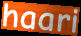
haari